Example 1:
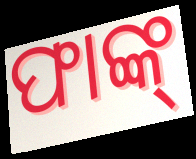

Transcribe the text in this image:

ଫାଙ୍କ୍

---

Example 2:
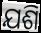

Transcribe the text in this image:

ଯଶି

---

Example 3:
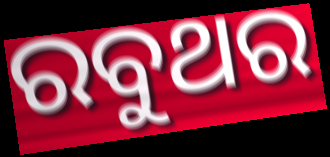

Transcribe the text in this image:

ରବୁଥର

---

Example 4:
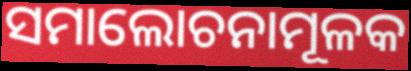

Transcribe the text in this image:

ସମାଲୋଚନାମୂଳକ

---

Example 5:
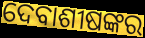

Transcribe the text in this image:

ଦେବାଶୀଷଙ୍କର